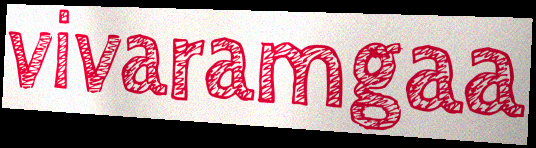
vivaramgaa